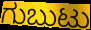
ಗುಬುಟು